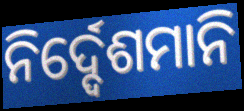
ନିର୍ଦ୍ଦେଶମାନି